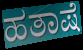
ಹತಾಷೆ